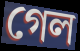
গেল